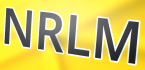
NRLM